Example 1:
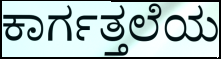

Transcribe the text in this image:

ಕಾರ್ಗತ್ತಲೆಯ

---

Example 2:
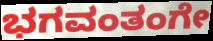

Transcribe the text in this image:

ಭಗವಂತಂಗೇ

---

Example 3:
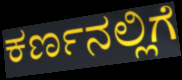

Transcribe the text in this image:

ಕರ್ಣನಲ್ಲಿಗೆ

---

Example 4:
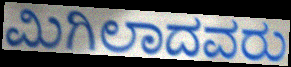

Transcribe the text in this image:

ಮಿಗಿಲಾದವರು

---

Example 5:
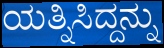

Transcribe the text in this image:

ಯತ್ನಿಸಿದ್ದನ್ನು